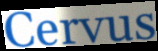
Cervus